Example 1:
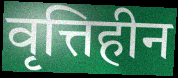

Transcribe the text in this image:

वृत्तिहीन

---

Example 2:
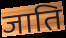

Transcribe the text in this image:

जाति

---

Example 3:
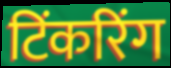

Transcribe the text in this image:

टिंकरिंग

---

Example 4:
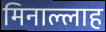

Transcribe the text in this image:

मिनाल्लाह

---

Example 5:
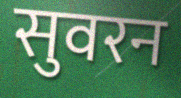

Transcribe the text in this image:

सुवरन